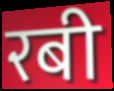
रबी